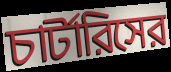
চার্টারিসের